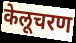
केलूचरण